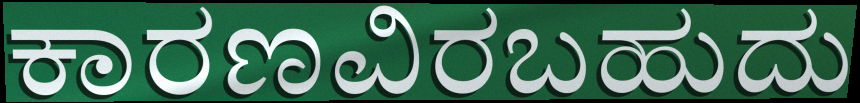
ಕಾರಣವಿರಬಹುದು